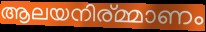
ആലയനിര്മ്മാണം